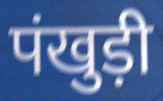
पंखुड़ी